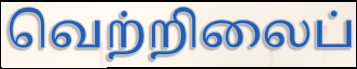
வெற்றிலைப்